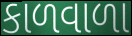
કાળવાળા